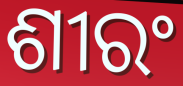
ଶୀରଂ